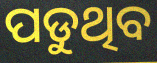
ପଡୁଥିବ